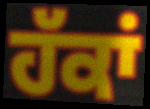
ਹੱਕਾਂ